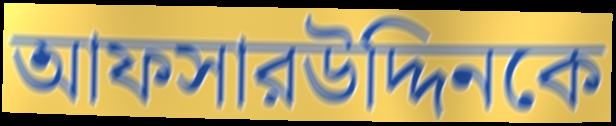
আফসারউদ্দিনকে